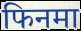
फिनमा